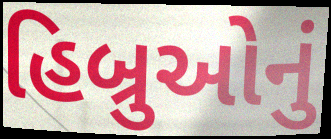
હિબ્રુઓનું